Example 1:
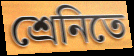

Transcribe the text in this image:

শ্রেনিতে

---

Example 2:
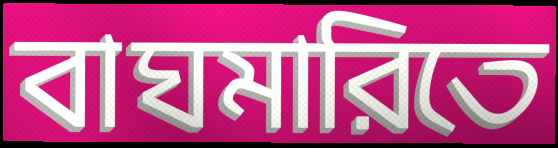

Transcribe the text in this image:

বাঘমারিতে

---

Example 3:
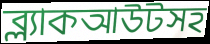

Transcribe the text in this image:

ব্ল্যাকআউটসহ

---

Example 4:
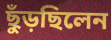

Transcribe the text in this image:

ছুঁড়ছিলেন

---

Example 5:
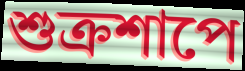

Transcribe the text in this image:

শুক্রশাপে